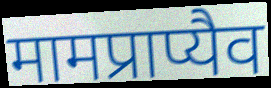
मामप्राप्यैव